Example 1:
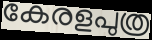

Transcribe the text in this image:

കേരളപുത്ര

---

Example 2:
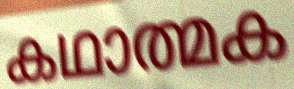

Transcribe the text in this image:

കഥാത്മക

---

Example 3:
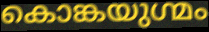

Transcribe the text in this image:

കൊങ്കയുഗ്മം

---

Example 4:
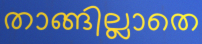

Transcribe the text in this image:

താങ്ങില്ലാതെ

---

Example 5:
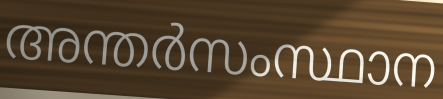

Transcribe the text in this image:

അന്തർസംസ്ഥാന